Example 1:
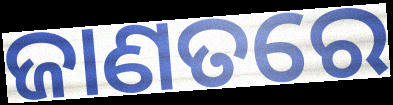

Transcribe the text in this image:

ଜାଣତରେ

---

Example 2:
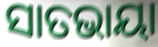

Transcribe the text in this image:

ସାତଭାୟା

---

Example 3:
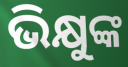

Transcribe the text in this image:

ଭିକ୍ଷୁଙ୍କ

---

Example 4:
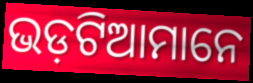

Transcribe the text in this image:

ଭଡ଼ଟିଆମାନେ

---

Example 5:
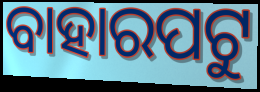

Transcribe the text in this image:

ବାହାରପଟୁ